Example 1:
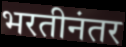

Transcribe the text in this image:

भरतीनंतर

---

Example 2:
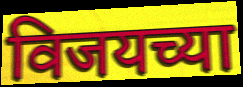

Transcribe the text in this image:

विजयच्या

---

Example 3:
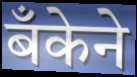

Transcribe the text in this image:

बँकेने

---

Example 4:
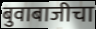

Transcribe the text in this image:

बुवाबाजीचा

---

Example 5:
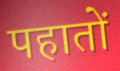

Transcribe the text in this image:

पहातों